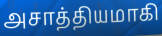
அசாத்தியமாகி